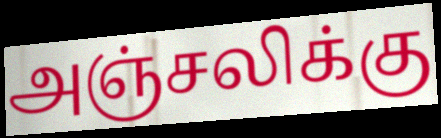
அஞ்சலிக்கு